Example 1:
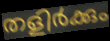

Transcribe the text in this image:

തളിർക്കും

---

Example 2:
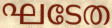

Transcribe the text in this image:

ഘടേത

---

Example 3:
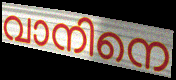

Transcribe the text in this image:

വാനിനെ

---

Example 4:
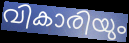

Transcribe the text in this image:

വികാരിയും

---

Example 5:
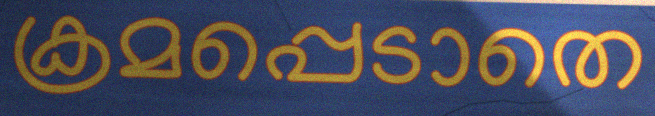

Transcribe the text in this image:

ക്രമപ്പെടാതെ